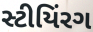
સ્ટીયિંરગ